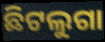
ଛିଟଲୁଗା